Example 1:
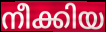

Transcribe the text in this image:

നീക്കിയ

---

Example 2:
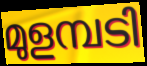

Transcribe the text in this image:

മുളമ്പടി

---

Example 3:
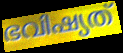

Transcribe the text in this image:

ഭവിഷ്യത്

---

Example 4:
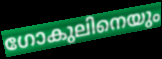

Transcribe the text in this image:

ഗോകുലിനെയും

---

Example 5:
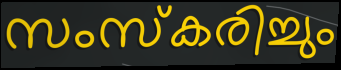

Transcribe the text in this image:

സംസ്കരിച്ചും